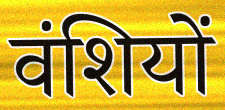
वंशियों